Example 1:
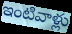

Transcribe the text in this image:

ఇంటివాళ్లు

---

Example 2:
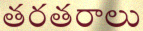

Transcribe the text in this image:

తరతరాలు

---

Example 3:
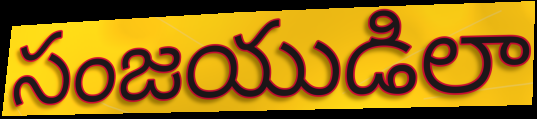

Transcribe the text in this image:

సంజయుడిలా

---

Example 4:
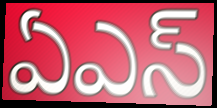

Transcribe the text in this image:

ఏఎస్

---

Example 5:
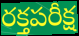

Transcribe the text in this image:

రక్తపరీక్ష